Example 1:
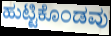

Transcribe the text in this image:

ಹುಟ್ಟಿಕೊಂಡವು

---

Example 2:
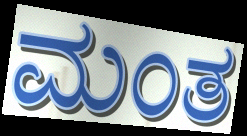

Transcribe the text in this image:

ಮಂತ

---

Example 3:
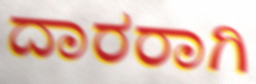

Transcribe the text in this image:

ದಾರರಾಗಿ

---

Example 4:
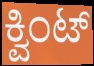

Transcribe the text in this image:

ಕ್ವಿಂಟ್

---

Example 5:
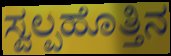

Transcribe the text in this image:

ಸ್ವಲ್ಪಹೊತ್ತಿನ